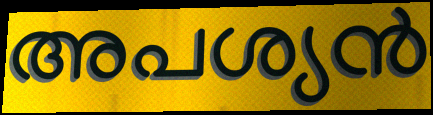
അപശ്യൻ